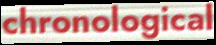
chronological